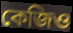
কেজিও